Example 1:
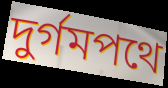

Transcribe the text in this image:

দুর্গমপথে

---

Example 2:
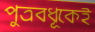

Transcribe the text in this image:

পুত্রবধূকেই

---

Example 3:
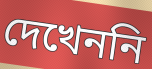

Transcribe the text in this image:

দেখেননি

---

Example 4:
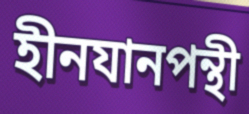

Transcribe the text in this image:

হীনযানপন্থী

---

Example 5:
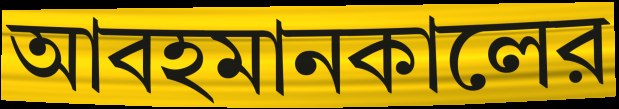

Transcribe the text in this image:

আবহমানকালের